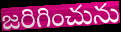
జరిగించును